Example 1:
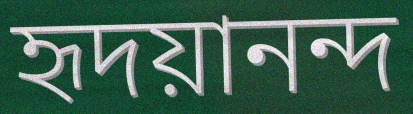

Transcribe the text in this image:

হৃদয়ানন্দ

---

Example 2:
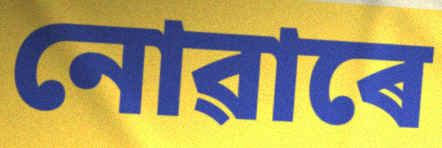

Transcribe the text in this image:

নোৱাৰে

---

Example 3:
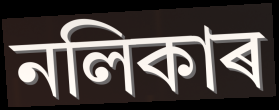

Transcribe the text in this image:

নলিকাৰ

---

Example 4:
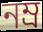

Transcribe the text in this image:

নম্ৰ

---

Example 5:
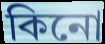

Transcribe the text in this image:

কিনো